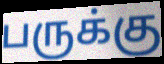
பருக்கு